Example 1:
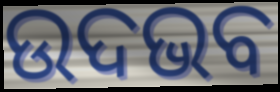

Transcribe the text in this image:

ଉଦଭବ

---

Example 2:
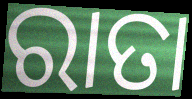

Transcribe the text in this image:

ରାତା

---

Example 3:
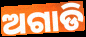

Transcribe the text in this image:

ଅଗାଡି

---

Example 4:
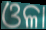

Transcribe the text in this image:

ଓଳା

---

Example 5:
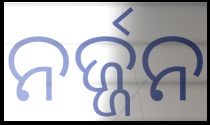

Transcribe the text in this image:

ନର୍ଜ୍ଜନ